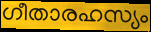
ഗീതാരഹസ്യം